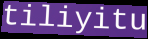
tiliyitu